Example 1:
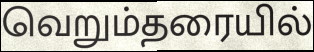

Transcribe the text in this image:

வெறும்தரையில்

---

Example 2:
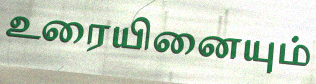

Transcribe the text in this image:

உரையினையும்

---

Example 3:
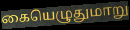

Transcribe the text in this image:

கையெழுதுமாறு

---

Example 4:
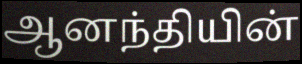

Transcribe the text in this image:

ஆனந்தியின்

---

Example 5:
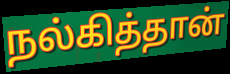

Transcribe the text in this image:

நல்கித்தான்